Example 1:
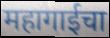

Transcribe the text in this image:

महागाईचा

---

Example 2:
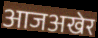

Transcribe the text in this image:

आजअखेर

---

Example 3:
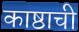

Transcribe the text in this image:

काष्ठाची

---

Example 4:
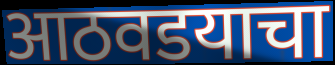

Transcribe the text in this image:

आठवडयाचा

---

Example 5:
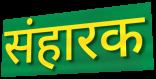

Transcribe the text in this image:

संहारक